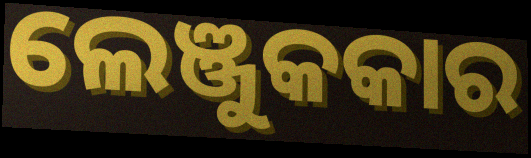
ଲେଞ୍ଜୁକକାର